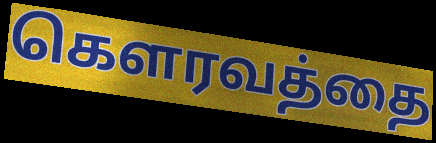
கௌரவத்தை